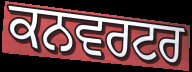
ਕਨਵਰਟਰ